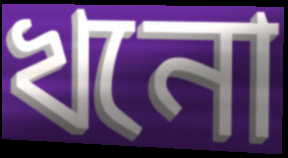
খনো